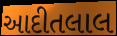
આદીતલાલ